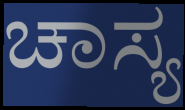
ಚಾಸ್ಯ